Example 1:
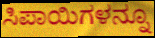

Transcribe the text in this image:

ಸಿಪಾಯಿಗಳನ್ನೂ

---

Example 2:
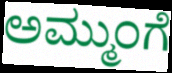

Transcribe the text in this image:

ಅಮ್ಮುಂಗೆ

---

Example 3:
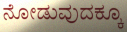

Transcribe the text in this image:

ನೋಡುವುದಕ್ಕೂ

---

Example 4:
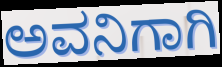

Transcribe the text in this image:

ಅವನಿಗಾಗಿ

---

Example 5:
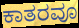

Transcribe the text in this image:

ಕಾತರವೂ